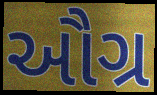
ઔગ્ર